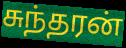
சுந்தரன்